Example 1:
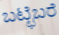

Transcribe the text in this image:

ಬಟ್ಟೆಬರೆ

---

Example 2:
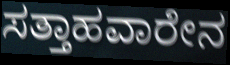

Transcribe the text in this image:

ಸತ್ತಾಹವಾರೇನ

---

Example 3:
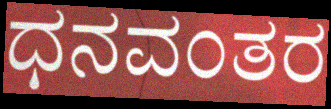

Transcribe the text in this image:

ಧನವಂತರ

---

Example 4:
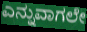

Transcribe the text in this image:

ಎನ್ನುವಾಗಲೇ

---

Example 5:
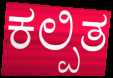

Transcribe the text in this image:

ಕಲ್ಪಿತ